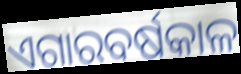
ଏଗାରବର୍ଷକାଳ